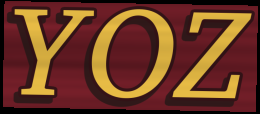
YOZ